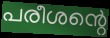
പരീശന്റെ